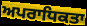
ਅਪਰਾਧਿਕਤਾ